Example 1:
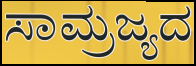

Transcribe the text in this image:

ಸಾಮ್ರಜ್ಯದ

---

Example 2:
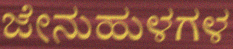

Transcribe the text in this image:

ಜೇನುಹುಳಗಳ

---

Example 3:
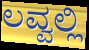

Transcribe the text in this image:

ಲವ್ವಲ್ಲಿ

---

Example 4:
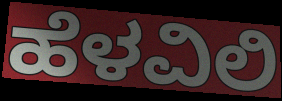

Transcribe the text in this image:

ಹೆಳವಿಲಿ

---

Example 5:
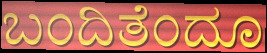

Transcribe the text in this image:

ಬಂದಿತೆಂದೂ